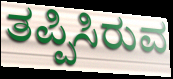
ತಪ್ಪಿಸಿರುವ